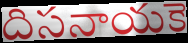
దిసనాయకె